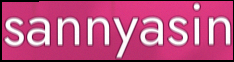
sannyasin